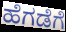
ಹೆಗಡೆಗೆ